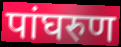
पांघरुण